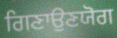
ਗਿਣਾਉਣਯੋਗ